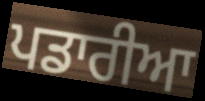
ਪਡਾਰੀਆ